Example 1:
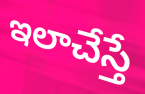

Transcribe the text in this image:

ఇలాచేస్తే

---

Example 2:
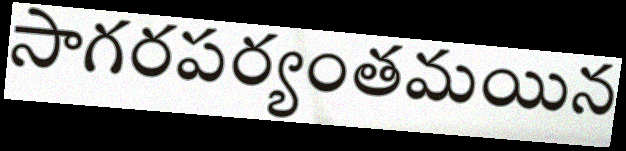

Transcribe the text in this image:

సాగరపర్యంతమయిన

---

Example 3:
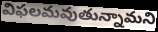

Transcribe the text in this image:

విఫలమవుతున్నామని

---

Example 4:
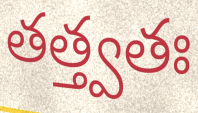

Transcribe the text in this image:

తత్త్వతః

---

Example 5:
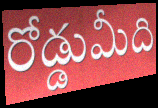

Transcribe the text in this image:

రోడ్డుమీది